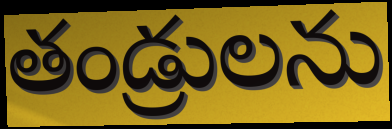
తండ్రులను